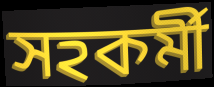
সহকৰ্মী